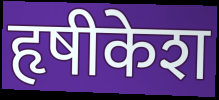
हृषीकेश